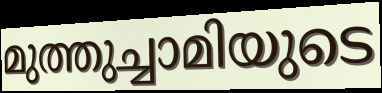
മുത്തുച്ചാമിയുടെ